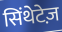
सिंथेटेज़